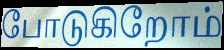
போடுகிறோம்